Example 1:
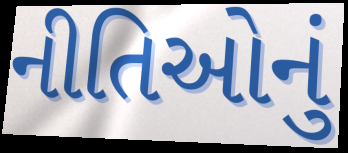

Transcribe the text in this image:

નીતિઓનું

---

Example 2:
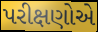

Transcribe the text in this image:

પરીક્ષણોએ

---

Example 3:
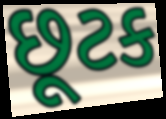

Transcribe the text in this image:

છૂટક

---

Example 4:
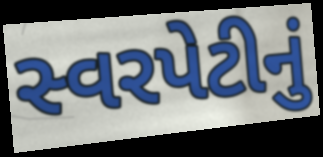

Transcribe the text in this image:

સ્વરપેટીનું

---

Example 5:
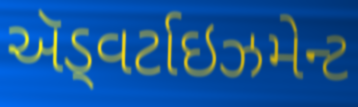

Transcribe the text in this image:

ઍડ્વર્ટાઇઝમેન્ટ